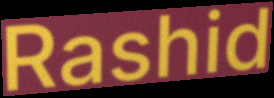
Rashid